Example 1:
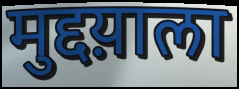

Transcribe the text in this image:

मुद्दय़ाला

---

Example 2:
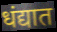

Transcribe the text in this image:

धंद्यात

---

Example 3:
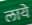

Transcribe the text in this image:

लाये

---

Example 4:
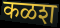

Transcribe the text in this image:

कळश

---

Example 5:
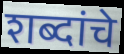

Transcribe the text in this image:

शब्दांचे